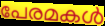
പേരമകൾ